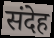
संदेह